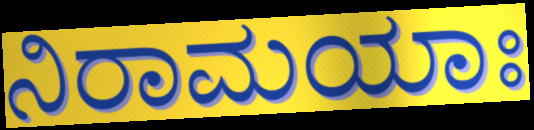
ನಿರಾಮಯಾಃ